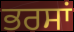
ਭਰਸਾਂ